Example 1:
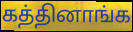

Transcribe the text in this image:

கத்தினாங்க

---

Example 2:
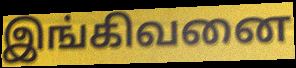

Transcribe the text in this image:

இங்கிவனை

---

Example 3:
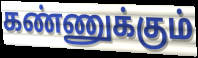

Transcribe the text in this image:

கண்ணுக்கும்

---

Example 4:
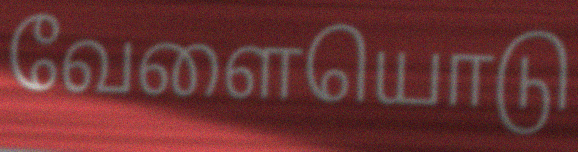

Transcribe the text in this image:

வேளையொடு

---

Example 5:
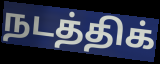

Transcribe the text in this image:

நடத்திக்